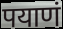
पयाणं